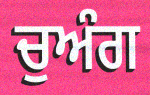
ਚੁਅੰਗ